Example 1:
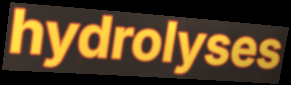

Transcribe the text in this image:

hydrolyses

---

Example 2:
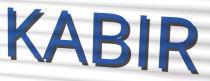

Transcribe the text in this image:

KABIR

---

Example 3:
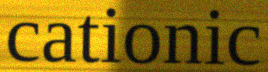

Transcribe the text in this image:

cationic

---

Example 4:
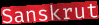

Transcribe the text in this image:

Sanskrut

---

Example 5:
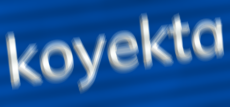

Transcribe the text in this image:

koyekta